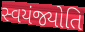
સ્વયંજ્યોતિ